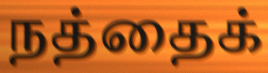
நத்தைக்